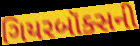
ગિયરબૉક્સની